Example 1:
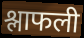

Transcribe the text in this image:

श्लाफली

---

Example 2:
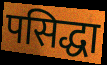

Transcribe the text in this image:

पसिद्धा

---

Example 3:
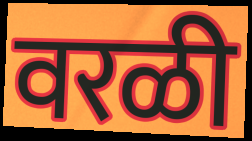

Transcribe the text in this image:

वरळी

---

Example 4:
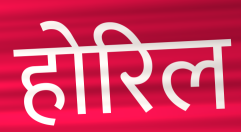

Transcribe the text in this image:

होरिल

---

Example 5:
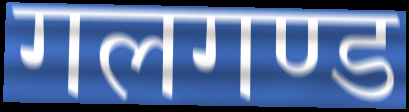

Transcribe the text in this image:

गलगण्ड